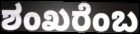
ಶಂಖರೆಂಬ